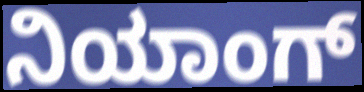
ನಿಯಾಂಗ್